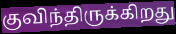
குவிந்திருக்கிறது